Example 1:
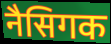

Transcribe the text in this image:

नैसिगक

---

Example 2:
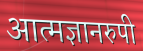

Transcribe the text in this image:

आत्मज्ञानरुपी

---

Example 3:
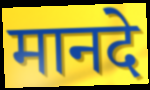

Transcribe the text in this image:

मानदे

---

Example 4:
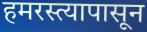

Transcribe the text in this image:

हमरस्त्यापासून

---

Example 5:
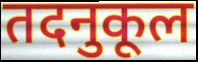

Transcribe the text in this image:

तदनुकूल